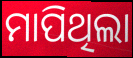
ମାପିଥିଲା